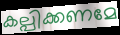
കല്പിക്കണമേ